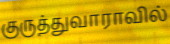
குருத்துவாராவில்